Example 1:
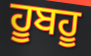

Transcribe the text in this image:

ਹੂਬਹੂ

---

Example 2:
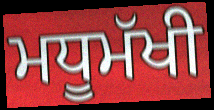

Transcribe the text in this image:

ਮਧੂਮੱਖੀ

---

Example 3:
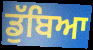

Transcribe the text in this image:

ਡੁੱਬਿਆ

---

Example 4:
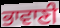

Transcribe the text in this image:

ਭਾਵਾਣੀ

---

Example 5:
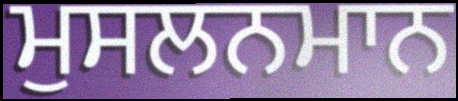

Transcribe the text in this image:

ਮੁਸਲਨਮਾਨ